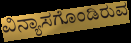
ವಿನ್ಯಾಸಗೊಂಡಿರುವ